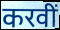
करवीं